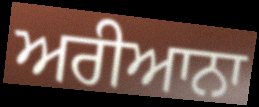
ਅਰੀਆਨਾ